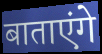
बाताएंगे